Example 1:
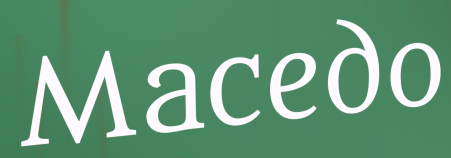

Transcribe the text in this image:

Macedo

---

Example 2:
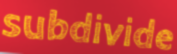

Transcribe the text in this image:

subdivide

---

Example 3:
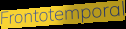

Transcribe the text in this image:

Frontotemporal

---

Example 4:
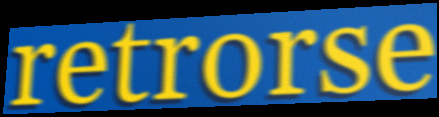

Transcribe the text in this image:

retrorse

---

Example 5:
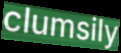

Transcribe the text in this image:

clumsily